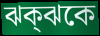
ঝক্ঝকে